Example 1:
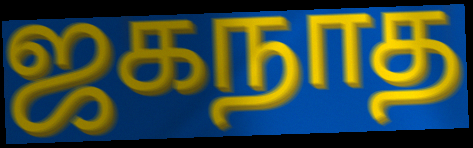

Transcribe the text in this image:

ஜகநாத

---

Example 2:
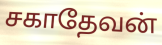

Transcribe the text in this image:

சகாதேவன்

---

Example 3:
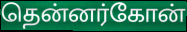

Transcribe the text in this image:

தென்னர்கோன்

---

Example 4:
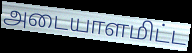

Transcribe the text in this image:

அடையாளமிட்ட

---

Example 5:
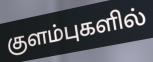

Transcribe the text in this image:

குளம்புகளில்